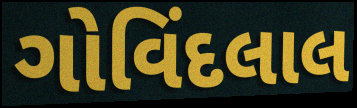
ગોવિંદલાલ